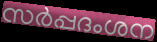
സർപ്പദംശന